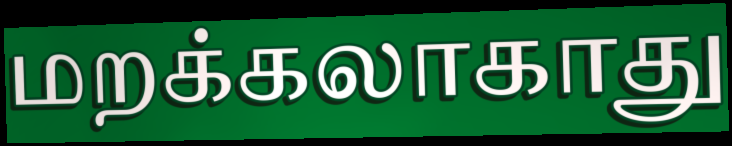
மறக்கலாகாது